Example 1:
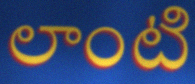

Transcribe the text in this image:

లాంటి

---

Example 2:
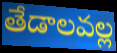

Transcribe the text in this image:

తేడాలవల్ల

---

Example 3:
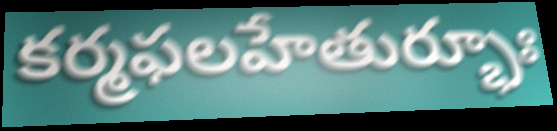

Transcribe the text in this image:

కర్మఫలహేతుర్భూః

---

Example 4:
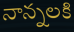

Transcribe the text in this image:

నాన్నలకి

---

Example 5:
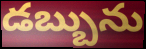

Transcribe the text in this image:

డబ్బును